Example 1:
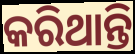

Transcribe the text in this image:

କରିଥାନ୍ତି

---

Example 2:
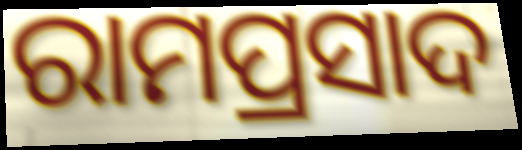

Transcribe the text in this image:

ରାମପ୍ରସାଦ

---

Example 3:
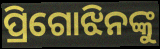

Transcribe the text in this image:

ପ୍ରିଗୋଝିନଙ୍କୁ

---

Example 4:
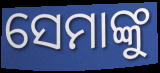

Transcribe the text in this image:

ସେମାଙ୍କୁ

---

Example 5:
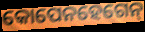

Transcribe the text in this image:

କୋପେନହେଗେନ୍